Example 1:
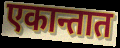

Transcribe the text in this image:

एकान्तात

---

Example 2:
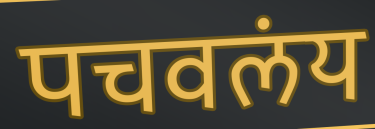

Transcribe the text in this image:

पचवलंय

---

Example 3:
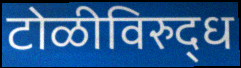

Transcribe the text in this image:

टोळीविरुद्ध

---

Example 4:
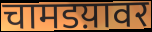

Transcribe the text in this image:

चामडय़ावर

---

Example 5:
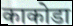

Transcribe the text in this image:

काकोडा